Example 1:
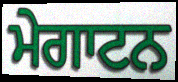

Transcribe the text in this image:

ਮੇਗਾਟਨ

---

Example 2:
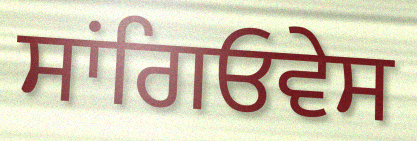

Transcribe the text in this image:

ਸਾਂਗਿਓਵੇਸ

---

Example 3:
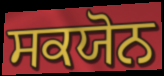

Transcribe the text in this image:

ਸਕਯੋਨ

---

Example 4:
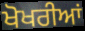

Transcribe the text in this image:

ਖੋਖਰੀਆਂ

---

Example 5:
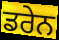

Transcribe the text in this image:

ਡਰੇਨ